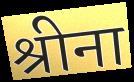
श्रीना